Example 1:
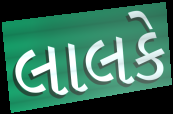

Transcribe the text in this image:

લાલકે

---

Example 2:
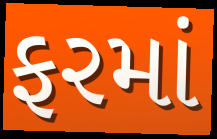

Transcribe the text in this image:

ફરમાં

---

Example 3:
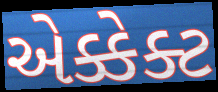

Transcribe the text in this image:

એક્કેક્ટ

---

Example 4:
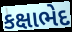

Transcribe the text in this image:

કક્ષાભેદ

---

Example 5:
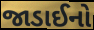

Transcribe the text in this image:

જાડાઈનો